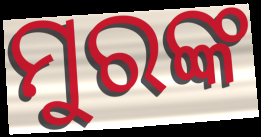
ମୁରଙ୍କ